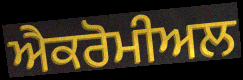
ਐਕਰੋਮੀਅਲ